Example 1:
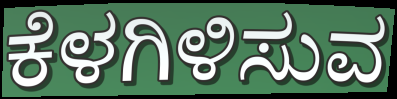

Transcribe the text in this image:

ಕೆಳಗಿಳಿಸುವ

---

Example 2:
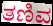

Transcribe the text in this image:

ತಣಿವ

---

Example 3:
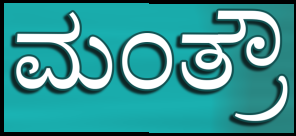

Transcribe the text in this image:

ಮಂತ್ರೌ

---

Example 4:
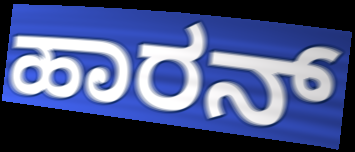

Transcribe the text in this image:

ಹಾರನ್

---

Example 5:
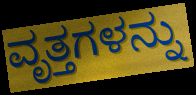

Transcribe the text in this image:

ವೃತ್ತಗಳನ್ನು